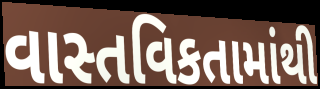
વાસ્તવિકતામાંથી